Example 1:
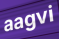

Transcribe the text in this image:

aagvi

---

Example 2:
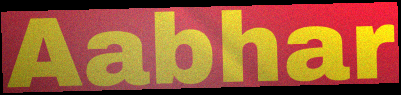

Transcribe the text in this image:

Aabhar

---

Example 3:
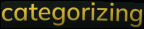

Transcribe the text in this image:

categorizing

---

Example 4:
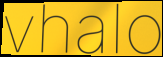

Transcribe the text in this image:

vhalo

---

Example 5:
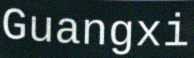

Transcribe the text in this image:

Guangxi